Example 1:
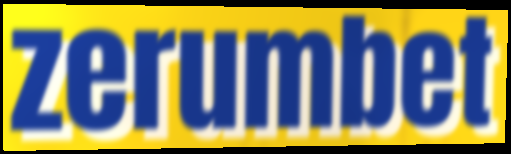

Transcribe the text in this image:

zerumbet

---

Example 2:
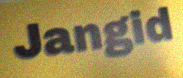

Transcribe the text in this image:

Jangid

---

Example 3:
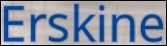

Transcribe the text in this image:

Erskine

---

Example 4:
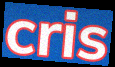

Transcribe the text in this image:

cris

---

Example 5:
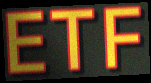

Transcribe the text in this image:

ETF